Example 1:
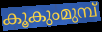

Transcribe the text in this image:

കൂകുംമുമ്പ്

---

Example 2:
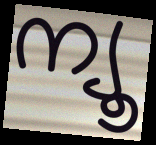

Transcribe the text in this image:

ന്യൂ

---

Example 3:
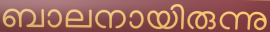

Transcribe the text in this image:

ബാലനായിരുന്നു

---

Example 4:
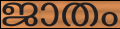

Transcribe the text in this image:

ജാതം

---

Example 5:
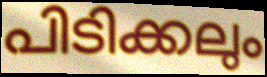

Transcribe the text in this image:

പിടിക്കലും